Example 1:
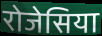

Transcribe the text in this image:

रोजेसिया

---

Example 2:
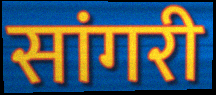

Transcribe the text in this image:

सांगरी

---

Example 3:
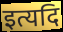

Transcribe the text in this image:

इत्यदि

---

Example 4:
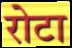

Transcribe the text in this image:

रोटा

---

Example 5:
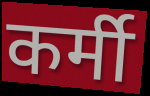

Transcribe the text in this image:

कर्मी